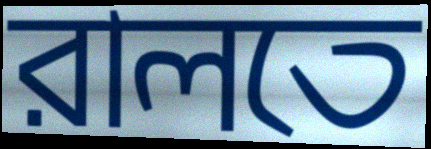
রালতে